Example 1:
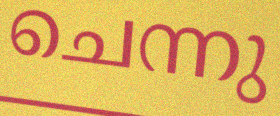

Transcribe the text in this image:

ചെന്നു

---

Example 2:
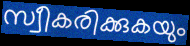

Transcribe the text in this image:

സ്വീകരിക്കുകയും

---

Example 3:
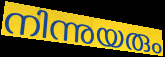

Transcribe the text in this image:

നിന്നുയരും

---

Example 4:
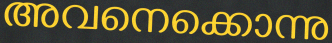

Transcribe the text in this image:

അവനെക്കൊന്നു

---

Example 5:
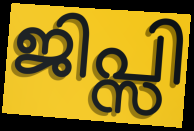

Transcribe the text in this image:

ജിപ്സി